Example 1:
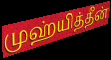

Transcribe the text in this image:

முஹ்யித்தீன்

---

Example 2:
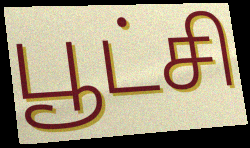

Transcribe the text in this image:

பூட்சி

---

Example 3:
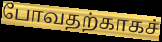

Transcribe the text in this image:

போவதற்காகச்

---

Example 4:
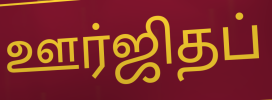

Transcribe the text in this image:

ஊர்ஜிதப்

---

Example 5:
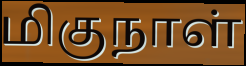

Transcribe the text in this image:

மிகுநாள்